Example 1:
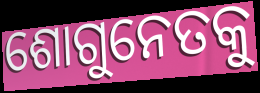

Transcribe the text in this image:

ଶୋଗୁନେତକୁ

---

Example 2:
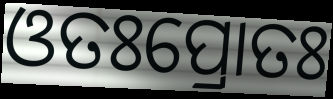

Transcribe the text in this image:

ଓତଃପ୍ରୋତଃ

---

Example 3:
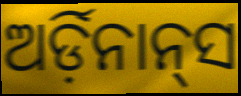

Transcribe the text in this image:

ଅର୍ଡ଼ିନାନ୍‌ସ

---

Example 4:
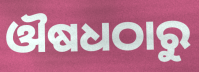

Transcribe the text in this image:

ଔଷଧଠାରୁ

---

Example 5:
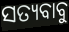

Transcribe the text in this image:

ସତ୍ୟବାବୁ